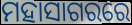
ମହାସାଗରରେ